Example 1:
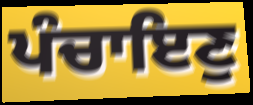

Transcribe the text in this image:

ਪੰਚਾਇਣੁ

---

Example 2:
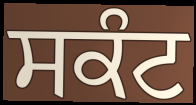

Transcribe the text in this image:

ਸਕੰਟ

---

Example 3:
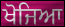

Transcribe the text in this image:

ਖੋਜਿਆ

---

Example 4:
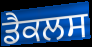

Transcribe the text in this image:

ਡੈਕਲਸ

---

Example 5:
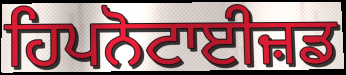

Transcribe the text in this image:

ਹਿਪਨੋਟਾਈਜ਼ਡ